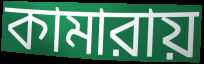
কামারায়